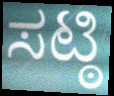
ಸಟ್ಠಿ